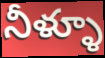
నీళ్ళూ